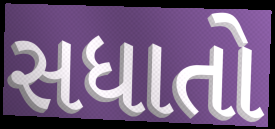
સધાતો